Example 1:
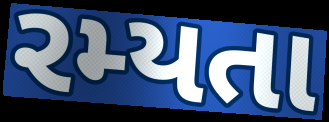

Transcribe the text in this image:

રમ્યતા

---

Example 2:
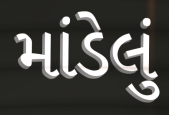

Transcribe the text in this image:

માંડેલું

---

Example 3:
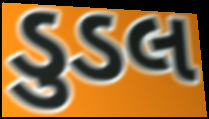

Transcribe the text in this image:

ડુડલ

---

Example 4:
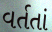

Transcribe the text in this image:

વર્તતાં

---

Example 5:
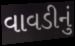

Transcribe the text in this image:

વાવડીનું